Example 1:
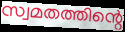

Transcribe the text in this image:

സ്വമതത്തിന്റെ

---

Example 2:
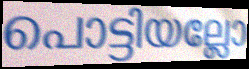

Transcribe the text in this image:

പൊട്ടിയല്ലോ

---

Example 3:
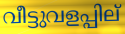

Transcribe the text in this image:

വീട്ടുവളപ്പില്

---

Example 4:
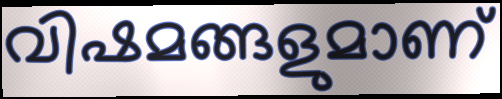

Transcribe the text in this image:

വിഷമങ്ങളുമാണ്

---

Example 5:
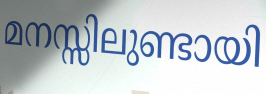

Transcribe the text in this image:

മനസ്സിലുണ്ടായി